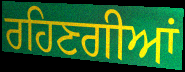
ਰਹਿਣਗੀਆਂ